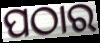
ପଠାର